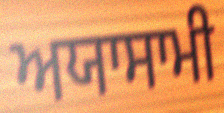
ਅਯਾਸਾਮੀ